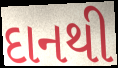
દાનથી